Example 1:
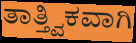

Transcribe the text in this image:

ತಾತ್ತ್ವಿಕವಾಗಿ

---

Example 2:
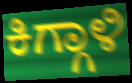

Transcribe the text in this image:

ಕಿಗ್ಗಾಳಿ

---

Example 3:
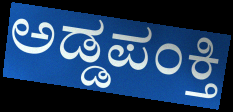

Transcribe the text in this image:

ಅಡ್ಡಪಂಕ್ತಿ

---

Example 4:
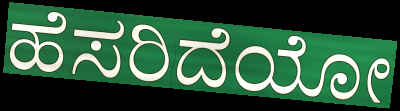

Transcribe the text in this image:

ಹೆಸರಿದೆಯೋ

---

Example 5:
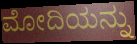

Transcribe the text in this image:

ಮೋದಿಯನ್ನು